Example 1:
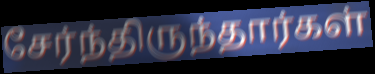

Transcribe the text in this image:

சேர்ந்திருந்தார்கள்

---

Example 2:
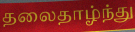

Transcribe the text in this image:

தலைதாழ்ந்து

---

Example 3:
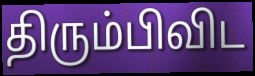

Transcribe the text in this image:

திரும்பிவிட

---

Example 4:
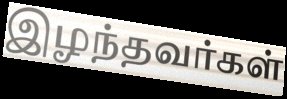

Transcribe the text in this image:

இழந்தவர்கள்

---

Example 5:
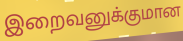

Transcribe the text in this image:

இறைவனுக்குமான